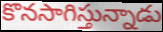
కొనసాగిస్తున్నాడు